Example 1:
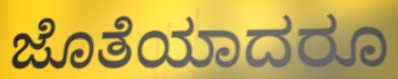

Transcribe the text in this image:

ಜೊತೆಯಾದರೂ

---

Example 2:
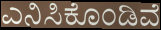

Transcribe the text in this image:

ಎನಿಸಿಕೊಂಡಿವೆ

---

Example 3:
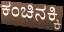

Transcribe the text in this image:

ಕಂಚಿನಕ್ಕಿ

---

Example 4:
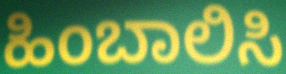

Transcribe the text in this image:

ಹಿಂಬಾಲಿಸಿ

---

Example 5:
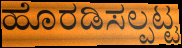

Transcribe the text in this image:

ಹೊರಡಿಸಲ್ಪಟ್ಟ